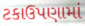
ટકાઉપણામાં